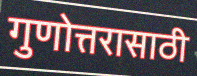
गुणोत्तरासाठी